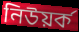
নিউয়ৰ্ক